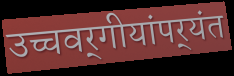
उच्चवर्गीयांपर्यंत